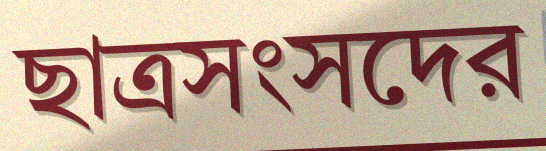
ছাত্রসংসদের